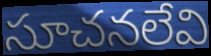
సూచనలేవి